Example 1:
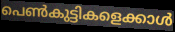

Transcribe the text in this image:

പെൺകുട്ടികളെക്കാൾ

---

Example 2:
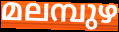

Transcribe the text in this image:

മലമ്പുഴ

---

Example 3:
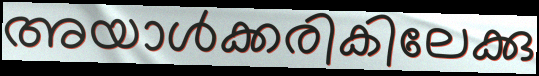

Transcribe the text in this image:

അയാൾക്കരികിലേക്കു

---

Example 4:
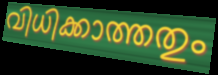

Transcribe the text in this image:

വിധിക്കാത്തതും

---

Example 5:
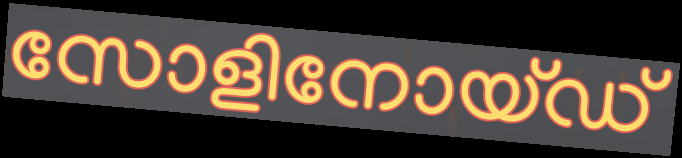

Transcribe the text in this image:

സോളിനോയ്ഡ്